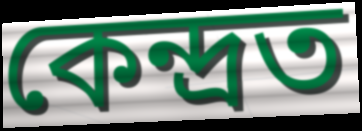
কেন্দ্ৰত